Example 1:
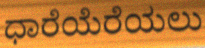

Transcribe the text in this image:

ಧಾರೆಯೆರೆಯಲು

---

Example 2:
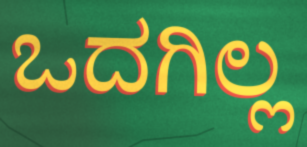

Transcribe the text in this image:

ಒದಗಿಲ್ಲ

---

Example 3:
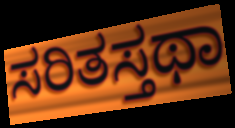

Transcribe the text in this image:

ಸರಿತಸ್ತಥಾ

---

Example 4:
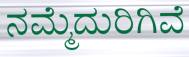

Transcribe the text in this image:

ನಮ್ಮೆದುರಿಗಿವೆ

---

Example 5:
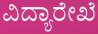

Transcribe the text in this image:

ವಿದ್ಯಾರೇಖೆ